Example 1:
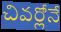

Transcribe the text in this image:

చివర్లోనే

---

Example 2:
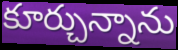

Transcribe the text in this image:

కూర్చున్నాను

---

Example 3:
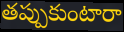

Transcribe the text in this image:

తప్పుకుంటారా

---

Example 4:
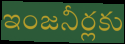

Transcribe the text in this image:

ఇంజనీర్లకు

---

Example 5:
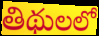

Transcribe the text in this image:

తిథులలో